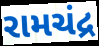
રામચંદ્ર